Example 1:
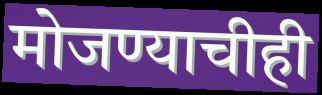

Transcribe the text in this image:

मोजण्याचीही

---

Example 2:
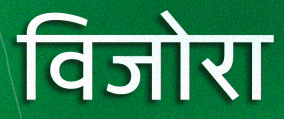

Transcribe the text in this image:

विजोरा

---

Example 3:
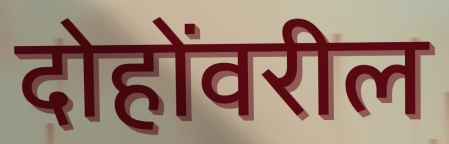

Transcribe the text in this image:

दोहोंवरील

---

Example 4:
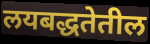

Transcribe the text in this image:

लयबद्धतेतील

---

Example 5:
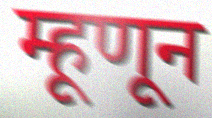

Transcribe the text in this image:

म्हूणून